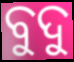
ବୁଦୁ